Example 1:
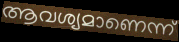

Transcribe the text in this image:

ആവശ്യമാണെന്ന്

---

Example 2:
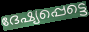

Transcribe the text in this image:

ദേഷ്യപ്പെട്ടെ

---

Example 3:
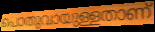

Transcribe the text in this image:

പൊതുവായുള്ളതാണ്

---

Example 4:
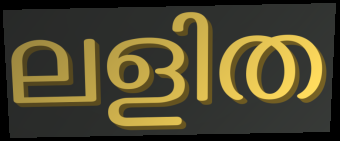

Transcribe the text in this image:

ലളിത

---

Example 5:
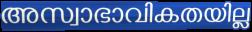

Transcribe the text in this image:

അസ്വാഭാവികതയില്ല